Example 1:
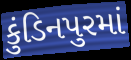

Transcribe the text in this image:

કુંડિનપુરમાં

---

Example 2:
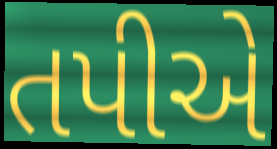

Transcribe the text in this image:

તપીએ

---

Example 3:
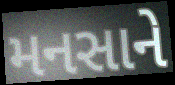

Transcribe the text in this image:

મનસાને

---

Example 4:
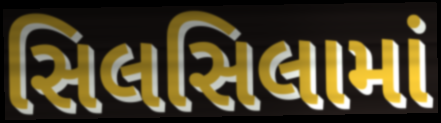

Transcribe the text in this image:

સિલસિલામાં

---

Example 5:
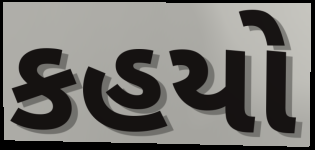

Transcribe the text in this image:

કહયો